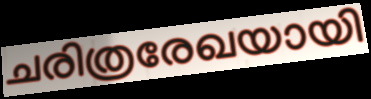
ചരിത്രരേഖയായി